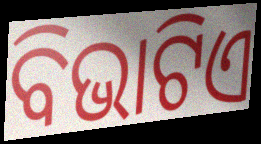
ବିଭାଟିଏ